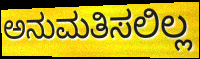
ಅನುಮತಿಸಲಿಲ್ಲ